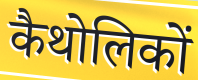
कैथोलिकों